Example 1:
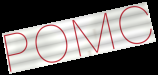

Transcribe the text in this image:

POMC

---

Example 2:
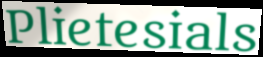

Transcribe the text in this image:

Plietesials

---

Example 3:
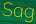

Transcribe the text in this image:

Sag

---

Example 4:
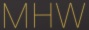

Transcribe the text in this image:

MHW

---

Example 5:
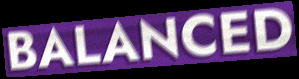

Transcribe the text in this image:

BALANCED